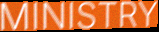
MINISTRY